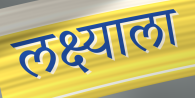
लक्ष्याला